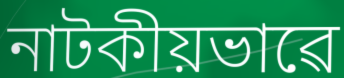
নাটকীয়ভাৱে